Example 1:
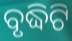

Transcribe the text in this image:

ବୃଦ୍ଧିଟି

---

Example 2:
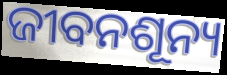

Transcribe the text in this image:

ଜୀବନଶୂନ୍ୟ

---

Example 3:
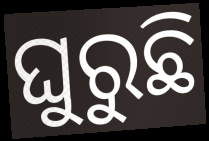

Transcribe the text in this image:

ଘୁରୁଛି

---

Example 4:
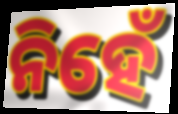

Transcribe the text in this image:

ନିହେଁ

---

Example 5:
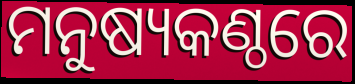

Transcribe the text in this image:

ମନୁଷ୍ୟକଣ୍ଠରେ